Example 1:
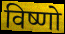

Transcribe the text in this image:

विष्णो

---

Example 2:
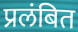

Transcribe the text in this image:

प्रलंबित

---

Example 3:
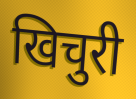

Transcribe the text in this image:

खिचुरी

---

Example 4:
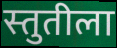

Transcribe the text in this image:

स्तुतीला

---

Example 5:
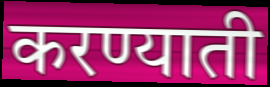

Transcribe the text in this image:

करण्याती